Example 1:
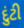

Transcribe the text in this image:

દુંટી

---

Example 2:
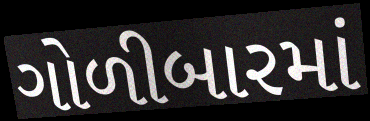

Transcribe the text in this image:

ગોળીબારમાં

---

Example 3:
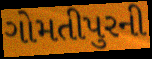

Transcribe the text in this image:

ગોમતીપુરની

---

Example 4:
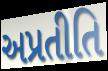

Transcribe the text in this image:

અપ્રતીતિ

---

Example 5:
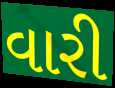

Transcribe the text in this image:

વારી